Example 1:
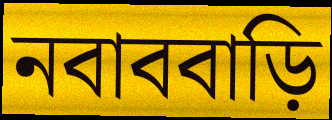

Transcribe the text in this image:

নবাববাড়ি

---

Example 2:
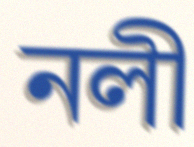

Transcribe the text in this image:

নলী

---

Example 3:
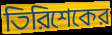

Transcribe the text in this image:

তিরিশেকের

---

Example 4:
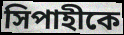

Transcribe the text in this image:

সিপাহীকে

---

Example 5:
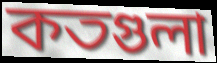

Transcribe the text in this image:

কতগুলা